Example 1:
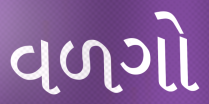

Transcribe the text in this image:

વળગો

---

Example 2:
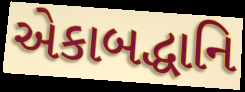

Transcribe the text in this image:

એકાબદ્ધાનિ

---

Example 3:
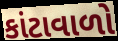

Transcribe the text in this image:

કાંટાવાળો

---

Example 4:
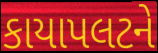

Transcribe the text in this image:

કાયાપલટને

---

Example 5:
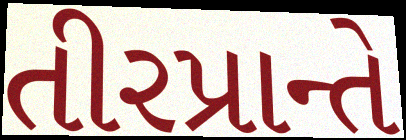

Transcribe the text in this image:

તીરપ્રાન્તે